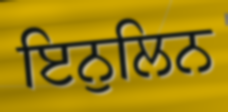
ਇਨੁਲਿਨ